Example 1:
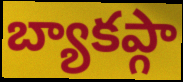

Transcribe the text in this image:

బ్యాకప్గా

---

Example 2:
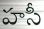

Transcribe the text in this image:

హసీ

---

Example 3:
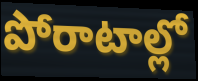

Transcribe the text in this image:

పోరాటాల్లో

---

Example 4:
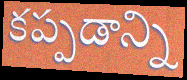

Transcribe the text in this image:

కప్పడాన్ని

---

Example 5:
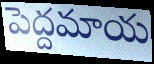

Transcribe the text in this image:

పెద్దమాయ